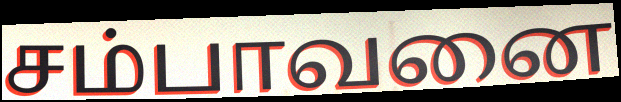
சம்பாவனை